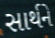
સાર્થને